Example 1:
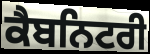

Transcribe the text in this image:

ਕੈਬਨਿਟਰੀ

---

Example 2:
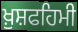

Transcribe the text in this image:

ਖ਼ੁਸ਼ਫਹਿਮੀ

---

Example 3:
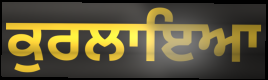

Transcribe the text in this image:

ਕੁਰਲਾਇਆ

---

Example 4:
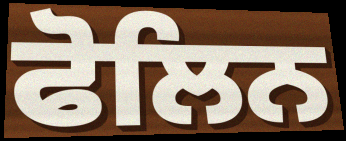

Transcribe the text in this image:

ਫੋਲਿਨ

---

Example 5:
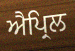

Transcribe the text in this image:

ਐਪ੍ਰਿਲ